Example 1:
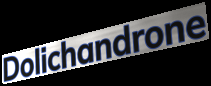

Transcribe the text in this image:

Dolichandrone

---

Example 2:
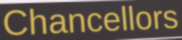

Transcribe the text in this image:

Chancellors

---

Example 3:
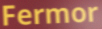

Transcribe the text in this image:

Fermor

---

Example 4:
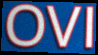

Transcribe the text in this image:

OVI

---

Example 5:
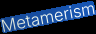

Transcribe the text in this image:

Metamerism